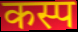
कस्प